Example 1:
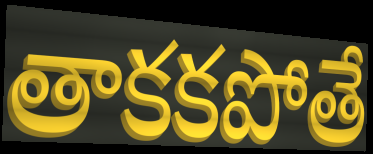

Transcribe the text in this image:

తాకకపోతే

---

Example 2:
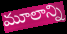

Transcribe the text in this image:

మూలాన్ని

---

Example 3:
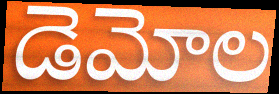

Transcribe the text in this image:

డెమోల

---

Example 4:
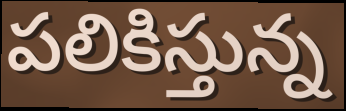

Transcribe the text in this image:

పలికిస్తున్న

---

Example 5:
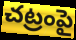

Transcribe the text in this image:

చట్రంపై